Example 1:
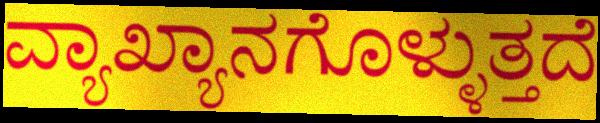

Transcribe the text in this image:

ವ್ಯಾಖ್ಯಾನಗೊಳ್ಳುತ್ತದೆ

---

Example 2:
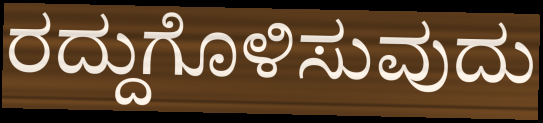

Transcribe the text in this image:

ರದ್ದುಗೊಳಿಸುವುದು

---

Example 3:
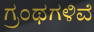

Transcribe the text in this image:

ಗ್ರಂಥಗಳಿವೆ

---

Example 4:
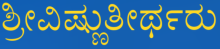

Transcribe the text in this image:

ಶ್ರೀವಿಷ್ಣುತೀರ್ಥರು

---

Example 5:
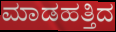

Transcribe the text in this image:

ಮಾಡಹತ್ತಿದ